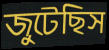
জুটেছিস